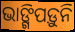
ଭାଙ୍ଗିପଡ଼ୁନି